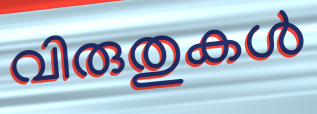
വിരുതുകൾ